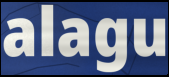
alagu